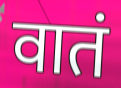
वातं